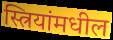
स्त्रियांमधील